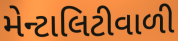
મેન્ટાલિટીવાળી